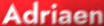
Adriaen